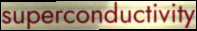
superconductivity